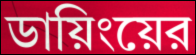
ডায়িংয়ের